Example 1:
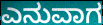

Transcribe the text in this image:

ಎನುವಾಗ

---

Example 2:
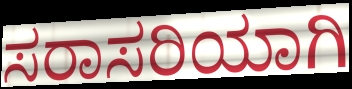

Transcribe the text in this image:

ಸರಾಸರಿಯಾಗಿ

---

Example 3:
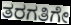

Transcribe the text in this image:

ತರಗತಿಗೇ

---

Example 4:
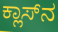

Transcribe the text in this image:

ಕ್ಲಾಸ್‌ನ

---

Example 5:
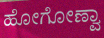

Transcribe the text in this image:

ಹೋಗೋಣ್ವಾ